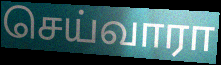
செய்வாரா